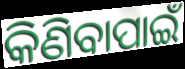
କିଣିବାପାଇଁ